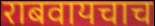
राबवायचाच